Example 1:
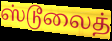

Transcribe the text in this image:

ஸ்டூலைத்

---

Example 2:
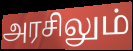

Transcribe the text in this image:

அரசிலும்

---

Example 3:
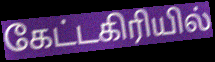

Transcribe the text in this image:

கேட்டகிரியில்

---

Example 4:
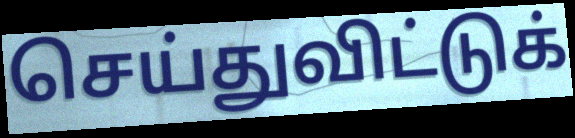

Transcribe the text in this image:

செய்துவிட்டுக்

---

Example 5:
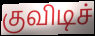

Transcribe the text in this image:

குவிடிச்